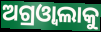
ଅଗ୍ରଓ୍ୱାଲାକୁ